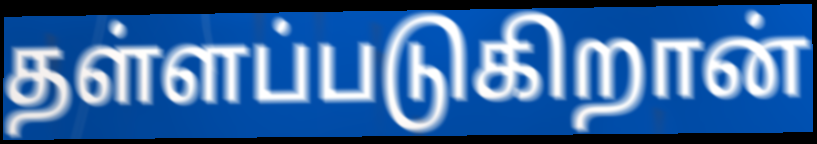
தள்ளப்படுகிறான்